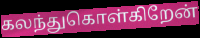
கலந்துகொள்கிறேன்